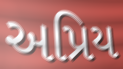
અપ્રિય